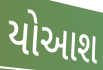
યોઆશ